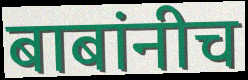
बाबांनीच